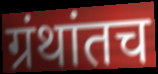
ग्रंथांतच